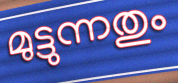
മുട്ടുന്നതും